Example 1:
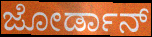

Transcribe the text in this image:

ಜೋರ್ಡಾನ್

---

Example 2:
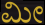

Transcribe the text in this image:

ಮೀ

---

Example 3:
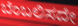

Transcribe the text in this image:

ಬೆಂಬಲಿಸದೇ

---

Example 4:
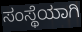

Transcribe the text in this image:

ಸಂಸ್ಥೆಯಾಗಿ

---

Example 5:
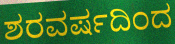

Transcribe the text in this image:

ಶರವರ್ಷದಿಂದ